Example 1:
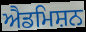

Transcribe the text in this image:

ਐਡਮਿਸ਼ਨ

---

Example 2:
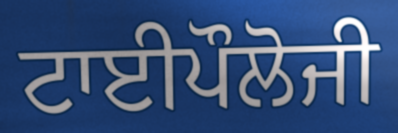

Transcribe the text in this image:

ਟਾਈਪੌਲੋਜੀ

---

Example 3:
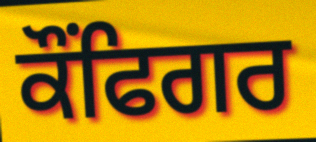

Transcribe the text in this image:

ਕੌਂਫਿਗਰ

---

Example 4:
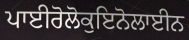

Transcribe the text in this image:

ਪਾਈਰੋਲੋਕੁਇਨੋਲਾਈਨ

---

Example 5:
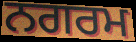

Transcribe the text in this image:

ਨਗਰਮ